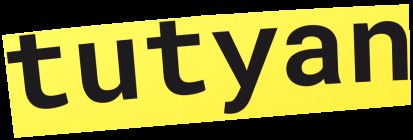
tutyan